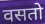
वसतो